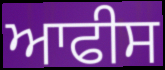
ਆਫੀਸ